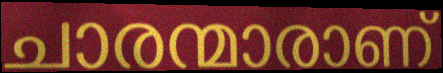
ചാരന്മാരാണ്